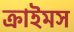
ক্রাইমস